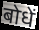
बोधें